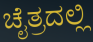
ಚೈತ್ರದಲ್ಲಿ